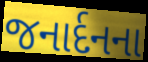
જનાર્દનના